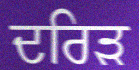
ਦਰਿੜ